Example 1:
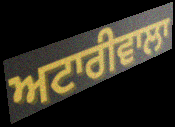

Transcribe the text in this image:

ਅਟਾਰੀਵਾਲਾ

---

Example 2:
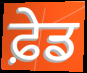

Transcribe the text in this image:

ਫ਼ੇਡ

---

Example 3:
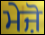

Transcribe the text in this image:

ਮੇਜ਼ੋ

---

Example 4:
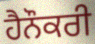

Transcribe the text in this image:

ਹੈਨੌਕਰੀ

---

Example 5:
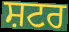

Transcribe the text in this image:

ਸ਼ਟਰ